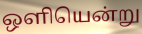
ஒளியென்று